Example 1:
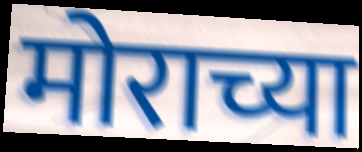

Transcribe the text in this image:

मोराच्या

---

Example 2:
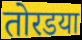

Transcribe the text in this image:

तोरडया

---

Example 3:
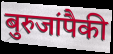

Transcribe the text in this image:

बुरुजांपैकी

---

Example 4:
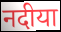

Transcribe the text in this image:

नदीया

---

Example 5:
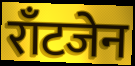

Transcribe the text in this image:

राँटजेन